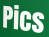
Pics